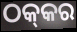
ଠକ୍‍କର